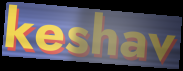
keshav